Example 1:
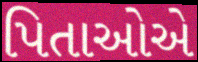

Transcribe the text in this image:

પિતાઓએ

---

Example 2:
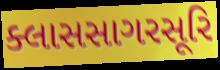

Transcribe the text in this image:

ક્લાસસાગરસૂરિ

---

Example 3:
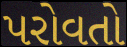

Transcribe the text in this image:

પરોવતો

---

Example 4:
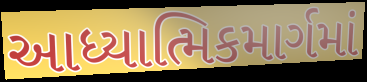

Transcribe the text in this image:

આધ્યાત્મિકમાર્ગમાં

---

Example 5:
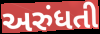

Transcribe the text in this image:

અરુંધતી